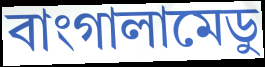
বাংগালামেডু